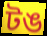
টঙ